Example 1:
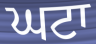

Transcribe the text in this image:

ਘਟਾ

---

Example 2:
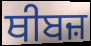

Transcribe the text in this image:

ਥੀਬਜ਼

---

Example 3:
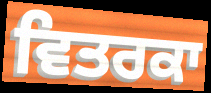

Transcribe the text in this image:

ਵਿਤਰਕਾ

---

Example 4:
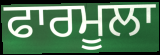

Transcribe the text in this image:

ਫਾਰਮੂਲਾ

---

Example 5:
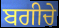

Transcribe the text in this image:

ਬਗੀਚੇ